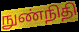
நுண்நிதி